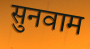
सुनवाम